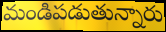
మండిపడుతున్నారు